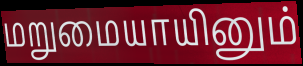
மறுமையாயினும்